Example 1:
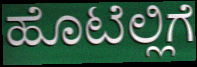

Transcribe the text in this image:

ಹೊಟೆಲ್ಲಿಗೆ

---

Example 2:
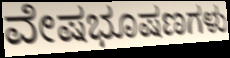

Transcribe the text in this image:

ವೇಷಭೂಷಣಗಳು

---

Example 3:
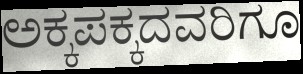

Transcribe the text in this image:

ಅಕ್ಕಪಕ್ಕದವರಿಗೂ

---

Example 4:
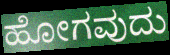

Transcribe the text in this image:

ಹೋಗವುದು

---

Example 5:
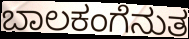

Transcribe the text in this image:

ಬಾಲಕಂಗೆನುತ